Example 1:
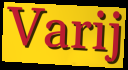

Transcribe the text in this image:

Varij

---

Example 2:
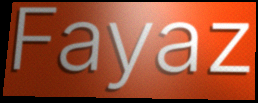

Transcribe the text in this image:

Fayaz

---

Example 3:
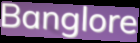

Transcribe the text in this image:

Banglore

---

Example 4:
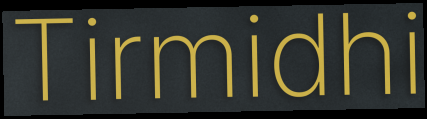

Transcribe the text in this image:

Tirmidhi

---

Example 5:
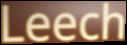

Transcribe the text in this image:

Leech